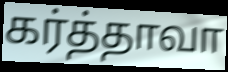
கர்த்தாவா